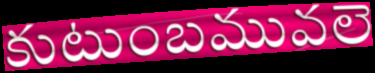
కుటుంబమువలె